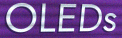
OLEDs